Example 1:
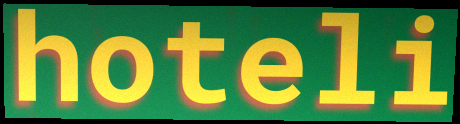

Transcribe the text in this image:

hoteli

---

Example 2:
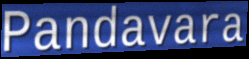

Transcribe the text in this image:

Pandavara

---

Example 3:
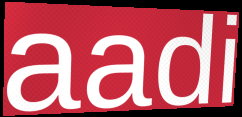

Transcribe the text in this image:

aadi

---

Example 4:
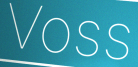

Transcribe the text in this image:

Voss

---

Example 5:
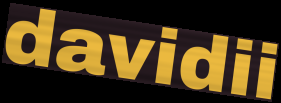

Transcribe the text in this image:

davidii